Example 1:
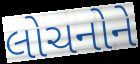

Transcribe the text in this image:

લોચનોને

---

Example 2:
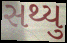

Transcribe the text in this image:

સથ્યુ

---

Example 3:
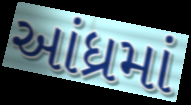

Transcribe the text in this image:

આંધ્રમાં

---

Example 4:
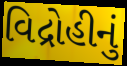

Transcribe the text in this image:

વિદ્રોહીનું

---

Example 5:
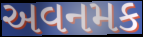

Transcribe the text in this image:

અવનમક